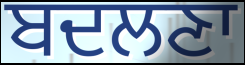
ਬਦਲਣਾ